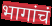
भागांचं